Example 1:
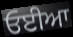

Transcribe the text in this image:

ਓਈਆ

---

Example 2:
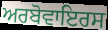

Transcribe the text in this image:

ਅਰਬੋਵਾਇਰਸ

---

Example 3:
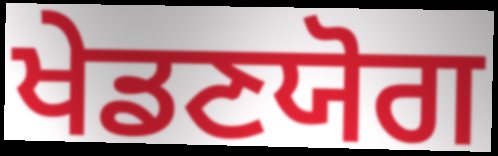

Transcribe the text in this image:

ਖੇਡਣਯੋਗ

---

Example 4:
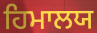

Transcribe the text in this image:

ਹਿਮਾਲਯ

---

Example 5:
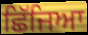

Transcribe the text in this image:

ਛਿੱਜਿਆ